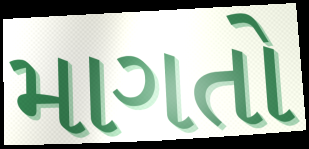
માગતો